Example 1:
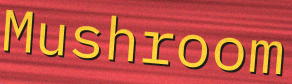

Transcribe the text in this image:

Mushroom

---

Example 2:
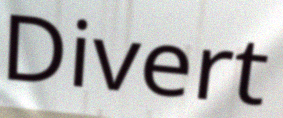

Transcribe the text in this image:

Divert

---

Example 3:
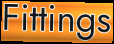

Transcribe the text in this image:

Fittings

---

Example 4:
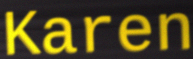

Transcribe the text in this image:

Karen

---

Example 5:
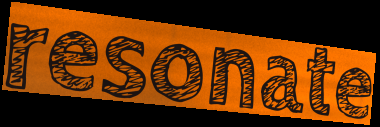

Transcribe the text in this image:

resonate